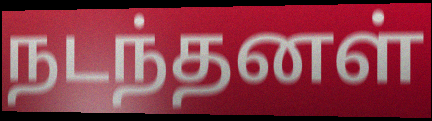
நடந்தனள்